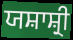
ਯਸ਼ਾਸ਼੍ਰੀ